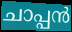
ചാപ്പൻ